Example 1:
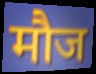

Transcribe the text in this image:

मौज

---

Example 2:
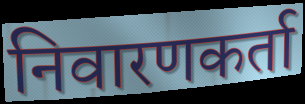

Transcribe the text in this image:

निवारणकर्ता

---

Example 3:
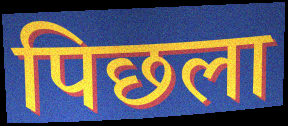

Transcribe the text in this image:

पिछला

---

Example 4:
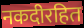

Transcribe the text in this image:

नकदीरहित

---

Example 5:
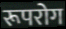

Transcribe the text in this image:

रूपरोग